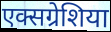
एक्सग्रेशिया